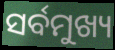
ସର୍ବମୁଖ୍ୟ